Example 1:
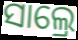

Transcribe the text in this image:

ସାଲ୍ରେ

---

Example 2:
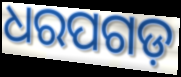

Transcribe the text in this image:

ଧରପଗଡ଼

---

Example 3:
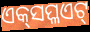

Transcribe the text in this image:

ଏକ୍‍ସପ୍ଳଏଟ୍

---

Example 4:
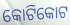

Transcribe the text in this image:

କୋଟିକୋଟ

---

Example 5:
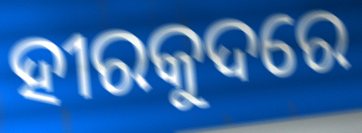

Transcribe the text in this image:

ହୀରକୁଦରେ